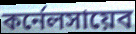
কর্নেলসায়েব